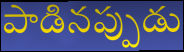
పాడినప్పుడు